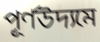
পূর্ণউদ্যমে